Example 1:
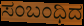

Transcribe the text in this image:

ಸಂಬಂಧಿದ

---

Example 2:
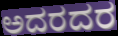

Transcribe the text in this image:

ಅದರದರ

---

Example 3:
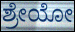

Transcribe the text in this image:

ಶ್ರೇಯೋ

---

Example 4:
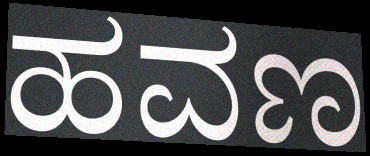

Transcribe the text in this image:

ಹವಣ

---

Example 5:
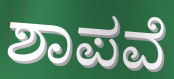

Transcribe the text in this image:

ಶಾಪವೆ